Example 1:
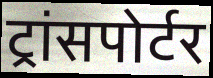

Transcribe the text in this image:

ट्रांसपोर्टर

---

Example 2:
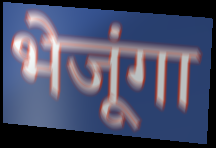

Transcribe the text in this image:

भेजूंगा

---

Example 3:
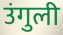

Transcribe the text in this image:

उंगुली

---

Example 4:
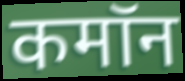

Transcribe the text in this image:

कमॉन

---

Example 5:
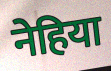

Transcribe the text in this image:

नेहिया